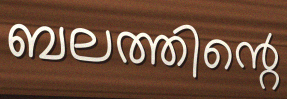
ബലത്തിന്റെ